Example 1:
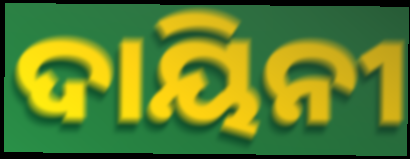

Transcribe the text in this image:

ଦାୟିନୀ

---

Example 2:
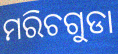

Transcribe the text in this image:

ମରିଚଗୁଡା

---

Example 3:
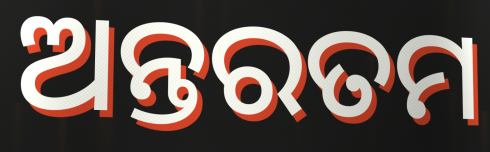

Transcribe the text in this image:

ଅନ୍ତରତମ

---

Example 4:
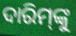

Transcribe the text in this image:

ଦାରିମ୍‍ଙ୍କୁ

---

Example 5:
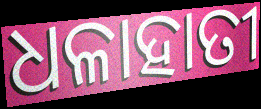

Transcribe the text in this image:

ଧଳାହାତୀ